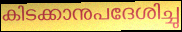
കിടക്കാനുപദേശിച്ചു